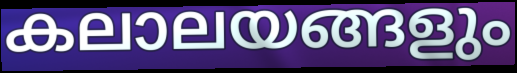
കലാലയങ്ങളും